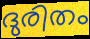
ദുരിതം